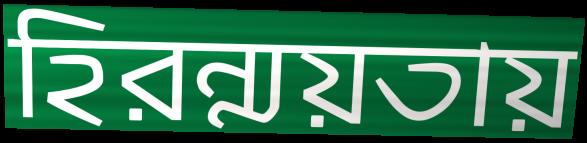
হিরন্ময়তায়